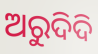
ଅରୁଦିଦି